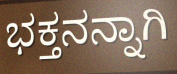
ಭಕ್ತನನ್ನಾಗಿ